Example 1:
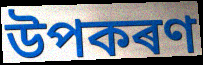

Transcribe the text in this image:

উপকৰণ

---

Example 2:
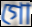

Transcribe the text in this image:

গো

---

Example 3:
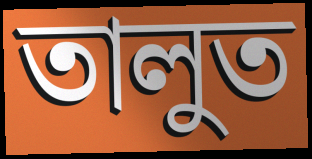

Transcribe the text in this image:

তালুত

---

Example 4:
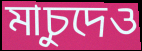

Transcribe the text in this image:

মাচুদেও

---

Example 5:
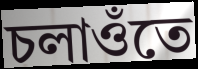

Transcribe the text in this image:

চলাওঁতে